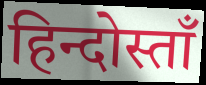
हिन्दोस्ताँ